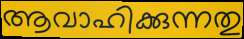
ആവാഹിക്കുന്നതു